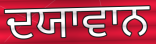
ਦਯਾਵਾਨ